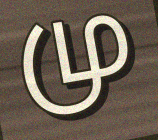
மு